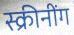
स्क्रीनींग